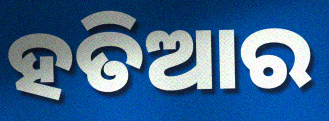
ହତିଆର